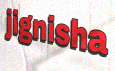
jignisha